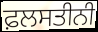
ਫ਼ਲਸਤੀਨੀ